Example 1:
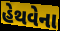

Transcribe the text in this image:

હેથવેના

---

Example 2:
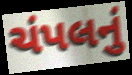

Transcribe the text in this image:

ચંપલનું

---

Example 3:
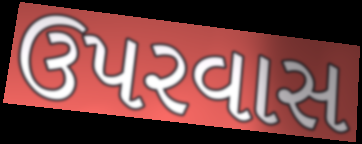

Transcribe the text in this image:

ઉપરવાસ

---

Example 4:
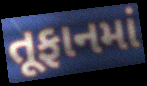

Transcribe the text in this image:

તૂફાનમાં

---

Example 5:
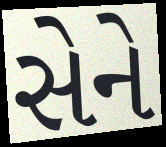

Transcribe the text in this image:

સેને